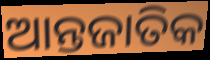
ଆନ୍ତଜାତିକ